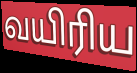
வயிரிய